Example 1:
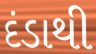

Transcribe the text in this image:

દંડાથી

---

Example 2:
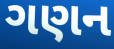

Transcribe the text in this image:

ગણન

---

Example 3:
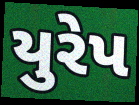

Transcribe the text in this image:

યુરેપ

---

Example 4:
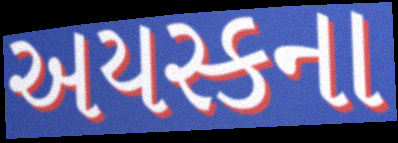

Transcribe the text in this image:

અયસ્કના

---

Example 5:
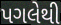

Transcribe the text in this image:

પગલેથી